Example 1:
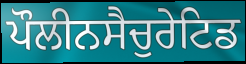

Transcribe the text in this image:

ਪੌਲੀਨਸੈਚੁਰੇਟਿਡ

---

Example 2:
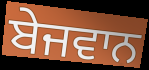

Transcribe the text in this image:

ਬੇਜਵਾਨ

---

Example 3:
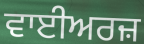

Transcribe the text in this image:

ਵਾਈਅਰਜ਼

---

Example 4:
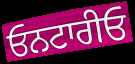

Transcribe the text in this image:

ਓਨਟਾਰੀਓ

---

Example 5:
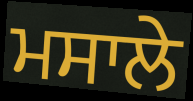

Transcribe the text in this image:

ਮਸਾਲੇ